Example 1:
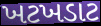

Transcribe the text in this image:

ખટખડાટ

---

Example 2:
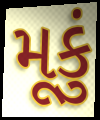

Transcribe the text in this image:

મૂકું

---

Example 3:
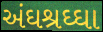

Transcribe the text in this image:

અંઘશ્રઘ્ઘા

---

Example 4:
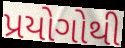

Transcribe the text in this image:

પ્રયોગોથી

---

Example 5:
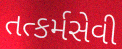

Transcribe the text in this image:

તત્કર્મસેવી